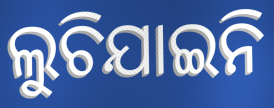
ଲୁଚିଯାଇନି